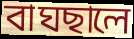
বাঘছালে